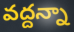
వద్దన్నా